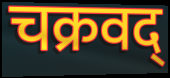
चक्रवद्